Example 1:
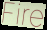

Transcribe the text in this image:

Fire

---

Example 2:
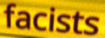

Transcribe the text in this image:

facists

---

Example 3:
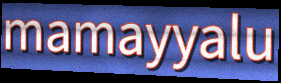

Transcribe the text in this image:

mamayyalu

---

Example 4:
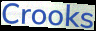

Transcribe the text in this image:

Crooks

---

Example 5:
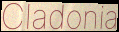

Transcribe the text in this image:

Cladonia